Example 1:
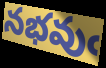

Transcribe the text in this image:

నభవుఁ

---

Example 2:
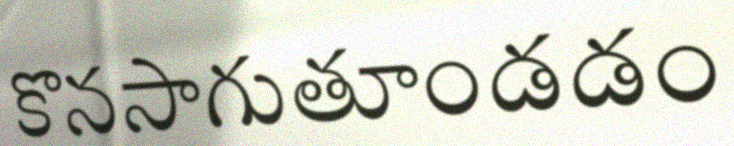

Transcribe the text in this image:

కొనసాగుతూండడం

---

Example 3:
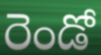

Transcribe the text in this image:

రెండో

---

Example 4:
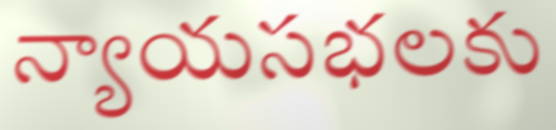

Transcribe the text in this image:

న్యాయసభలకు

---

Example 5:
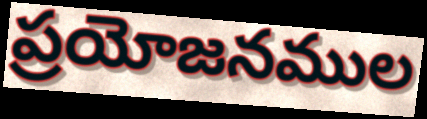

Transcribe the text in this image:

ప్రయోజనముల